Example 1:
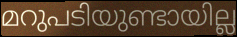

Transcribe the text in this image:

മറുപടിയുണ്ടായില്ല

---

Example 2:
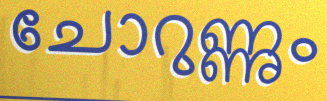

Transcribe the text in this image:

ചോറുണ്ണും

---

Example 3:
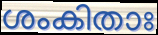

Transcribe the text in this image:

ശംകിതാഃ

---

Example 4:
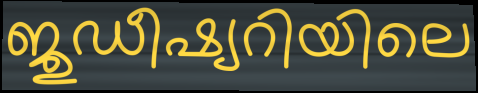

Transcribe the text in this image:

ജുഡീഷ്യറിയിലെ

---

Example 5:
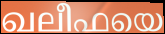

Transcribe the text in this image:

ഖലീഫയെ